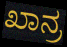
ಖಾನ್ರ